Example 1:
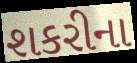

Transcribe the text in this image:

શકરીના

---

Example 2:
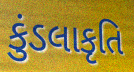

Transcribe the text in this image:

કુંડલાકૃતિ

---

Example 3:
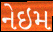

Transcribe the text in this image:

નેઇમ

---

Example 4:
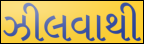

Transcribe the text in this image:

ઝીલવાથી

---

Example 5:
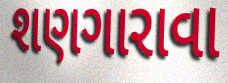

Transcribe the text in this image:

શણગારાવા